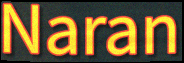
Naran